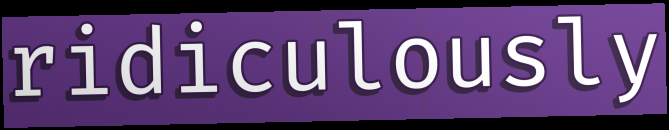
ridiculously